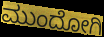
ಮುಂದೋಗಿ